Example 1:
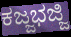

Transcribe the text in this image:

ಕಜ್ಜಭಜ್ಜಿ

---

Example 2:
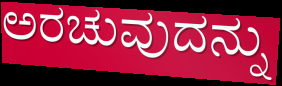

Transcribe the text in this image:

ಅರಚುವುದನ್ನು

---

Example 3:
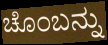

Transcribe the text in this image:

ಚೊಂಬನ್ನು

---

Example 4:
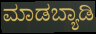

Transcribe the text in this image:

ಮಾಡಬ್ಯಾಡಿ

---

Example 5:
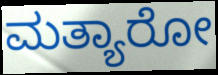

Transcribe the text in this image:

ಮತ್ಯಾರೋ